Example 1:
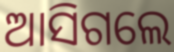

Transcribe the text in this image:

ଆସିଗଲେ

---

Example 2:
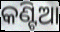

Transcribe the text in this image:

କଣ୍ଟିଆ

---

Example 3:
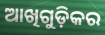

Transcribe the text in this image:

ଆଖିଗୁଡ଼ିକର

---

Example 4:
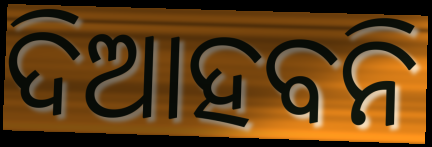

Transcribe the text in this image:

ଦିଆହବନି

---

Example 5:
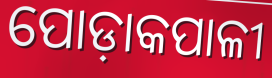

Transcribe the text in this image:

ପୋଡ଼ାକପାଳୀ